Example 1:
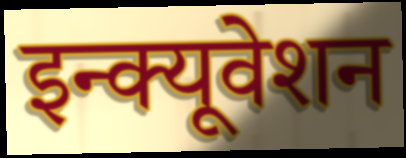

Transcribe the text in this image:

इन्क्यूवेशन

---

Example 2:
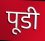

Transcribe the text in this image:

पूडी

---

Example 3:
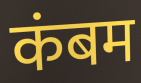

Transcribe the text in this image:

कंबम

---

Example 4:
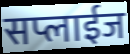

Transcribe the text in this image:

सप्लाईज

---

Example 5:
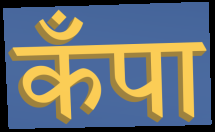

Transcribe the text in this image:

कँपा